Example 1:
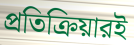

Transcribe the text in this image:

প্রতিক্রিয়ারই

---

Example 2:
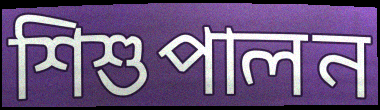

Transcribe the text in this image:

শিশুপালন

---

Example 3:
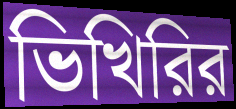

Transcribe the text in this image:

ভিখিরির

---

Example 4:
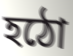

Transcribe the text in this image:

হঠো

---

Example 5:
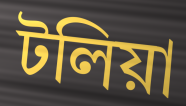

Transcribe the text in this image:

টলিয়া